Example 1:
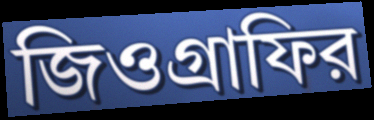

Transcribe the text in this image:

জিওগ্রাফির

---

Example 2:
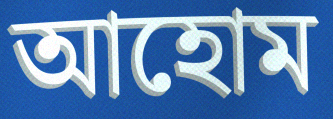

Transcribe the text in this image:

আহোম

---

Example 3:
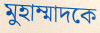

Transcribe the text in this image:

মুহাম্মাদকে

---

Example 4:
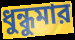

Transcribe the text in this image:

ধুন্ধুমার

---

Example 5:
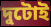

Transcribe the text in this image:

দুটোই